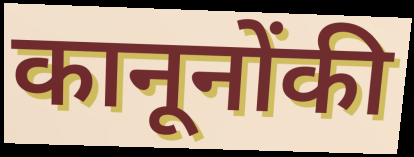
कानूनोंकी